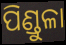
ପିଣ୍ଡୁଳା